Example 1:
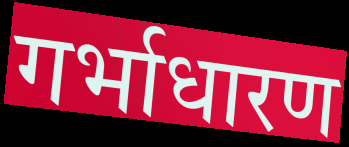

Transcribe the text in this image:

गर्भाधारण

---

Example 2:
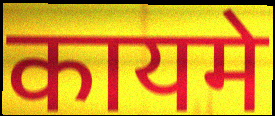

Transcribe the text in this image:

कायमे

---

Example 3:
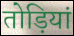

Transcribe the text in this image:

तोड़ियां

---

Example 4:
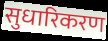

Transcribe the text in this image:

सुधारिकरण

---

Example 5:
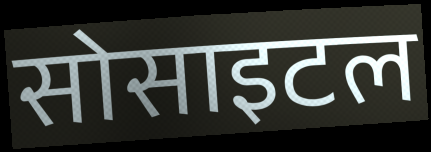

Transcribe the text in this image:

सोसाइटल